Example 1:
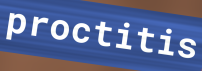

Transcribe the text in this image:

proctitis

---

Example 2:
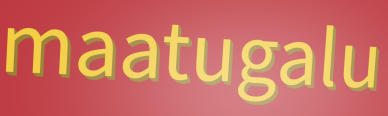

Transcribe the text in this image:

maatugalu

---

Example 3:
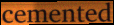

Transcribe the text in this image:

cemented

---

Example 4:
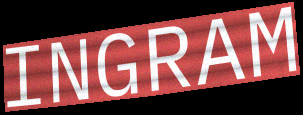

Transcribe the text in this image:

INGRAM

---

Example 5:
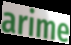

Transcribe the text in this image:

arime